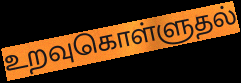
உறவுகொள்ளுதல்